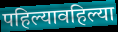
पहिल्यावहिल्या